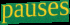
pauses